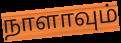
நாளாவும்